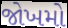
જોખમો